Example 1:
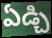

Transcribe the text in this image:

ఏడ్చి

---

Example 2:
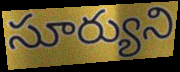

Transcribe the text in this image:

సూర్యుని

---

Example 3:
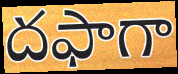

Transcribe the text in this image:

దఫాగా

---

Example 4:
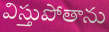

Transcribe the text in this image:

విస్తుపోతాను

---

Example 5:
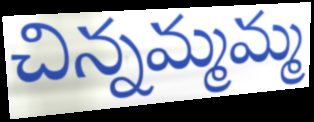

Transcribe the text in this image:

చిన్నమ్మమ్మ